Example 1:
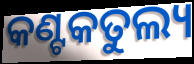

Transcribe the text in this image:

କଣ୍ଟକତୁଲ୍ୟ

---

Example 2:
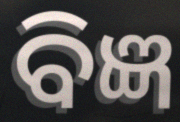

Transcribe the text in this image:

ବିଜ୍ଞ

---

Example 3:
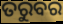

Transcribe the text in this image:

ତରୁବର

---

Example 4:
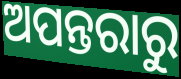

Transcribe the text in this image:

ଅପନ୍ତରାରୁ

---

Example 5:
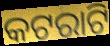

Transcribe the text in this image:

କଟରାଟି